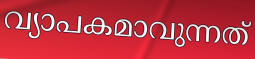
വ്യാപകമാവുന്നത്